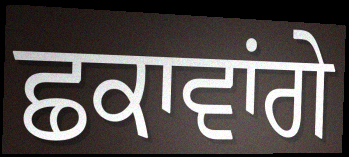
ਛਕਾਵਾਂਗੇ